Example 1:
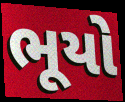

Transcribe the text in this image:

ભૂયો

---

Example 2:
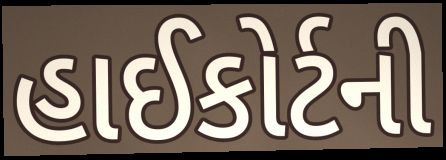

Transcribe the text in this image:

હાઈકોર્ટની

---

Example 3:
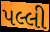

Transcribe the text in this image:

પલ્લી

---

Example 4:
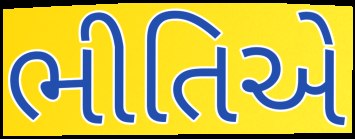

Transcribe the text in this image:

ભીતિએ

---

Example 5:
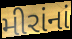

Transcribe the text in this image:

મીરાંનાં